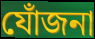
যোঁজনা